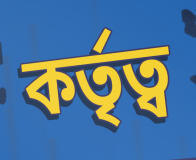
কৰ্তৃত্ব